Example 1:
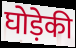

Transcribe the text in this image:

घोड़ेकी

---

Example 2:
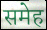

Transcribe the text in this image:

समेह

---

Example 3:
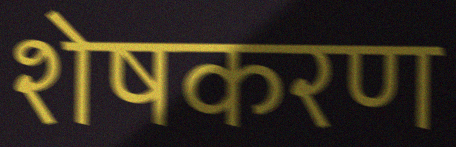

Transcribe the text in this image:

शेषकरण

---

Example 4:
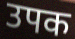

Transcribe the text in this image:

उपक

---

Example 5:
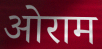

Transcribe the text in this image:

ओराम